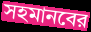
সহমানবের